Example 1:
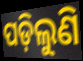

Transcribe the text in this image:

ପଡ଼ିଲୁଣି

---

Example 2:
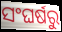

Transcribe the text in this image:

ସଂଘର୍ଷରୁ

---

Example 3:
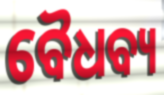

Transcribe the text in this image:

ବୈଧବ୍ୟ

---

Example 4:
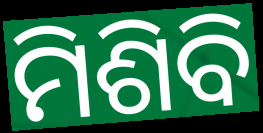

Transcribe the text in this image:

ମିଶିବି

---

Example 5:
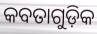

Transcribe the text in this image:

କବତାଗୁଡ଼ିକ